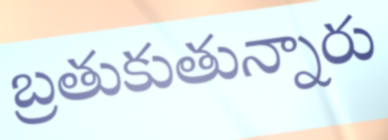
బ్రతుకుతున్నారు